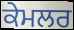
ਕੇਮਲਰ